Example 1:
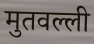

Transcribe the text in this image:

मुतवल्ली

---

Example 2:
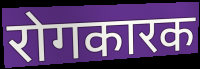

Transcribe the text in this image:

रोगकारक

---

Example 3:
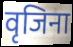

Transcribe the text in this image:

वृजिना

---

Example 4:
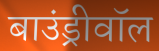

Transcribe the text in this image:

बाउंड्रीवॉल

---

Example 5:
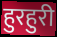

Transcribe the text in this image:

हुरहुरी